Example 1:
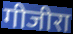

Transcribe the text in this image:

गीजीरा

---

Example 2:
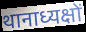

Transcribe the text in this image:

थानाध्यक्षों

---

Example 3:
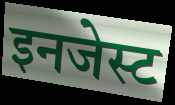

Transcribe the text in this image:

इनजेस्ट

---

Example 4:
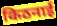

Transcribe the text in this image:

किठनाई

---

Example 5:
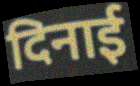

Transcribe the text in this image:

दिनाई